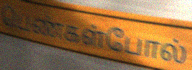
பெண்கள்போல்